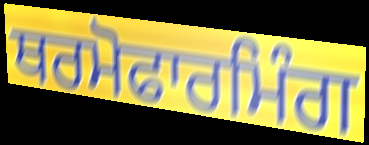
ਥਰਮੋਫਾਰਮਿੰਗ